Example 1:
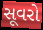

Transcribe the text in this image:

સૂવરો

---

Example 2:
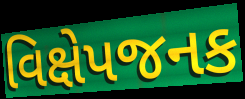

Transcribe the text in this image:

વિક્ષેપજનક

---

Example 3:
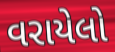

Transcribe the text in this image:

વરાયેલો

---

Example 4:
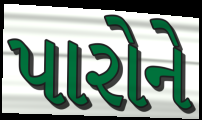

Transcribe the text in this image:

પારોને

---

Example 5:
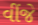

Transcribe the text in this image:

વીંજે